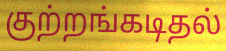
குற்றங்கடிதல்